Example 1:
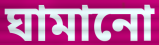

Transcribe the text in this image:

ঘামানো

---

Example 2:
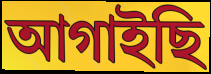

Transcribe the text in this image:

আগাইছি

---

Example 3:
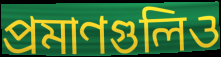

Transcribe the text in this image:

প্রমাণগুলিও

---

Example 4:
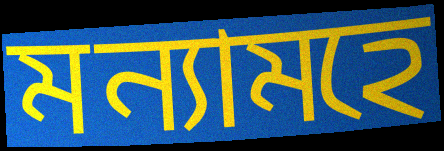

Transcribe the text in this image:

মন্যামহে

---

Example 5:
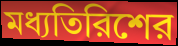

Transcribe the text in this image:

মধ্যতিরিশের